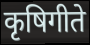
कृषिगीते